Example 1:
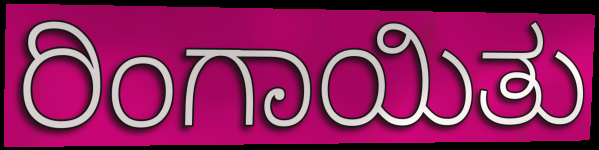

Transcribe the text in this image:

ರಿಂಗಾಯಿತು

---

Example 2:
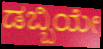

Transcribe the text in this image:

ಡಬ್ಬಿಯೇ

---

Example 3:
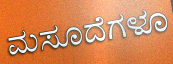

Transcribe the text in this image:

ಮಸೂದೆಗಳೂ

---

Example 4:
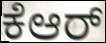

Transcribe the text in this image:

ಕೆಆರ್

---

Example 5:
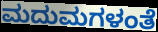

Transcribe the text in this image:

ಮದುಮಗಳಂತೆ